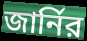
জার্নির